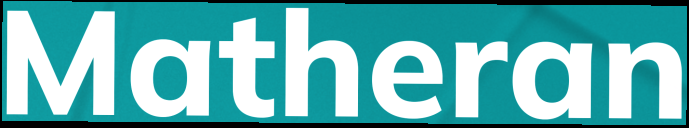
Matheran